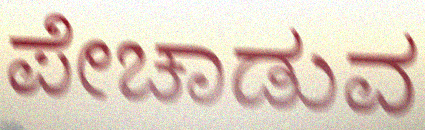
ಪೇಚಾಡುವ